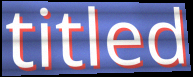
titled